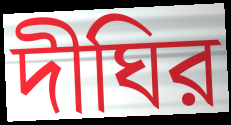
দীঘির